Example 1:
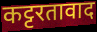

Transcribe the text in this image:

कट्टरतावाद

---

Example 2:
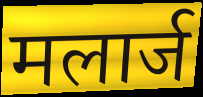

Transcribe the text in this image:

मलार्ज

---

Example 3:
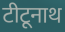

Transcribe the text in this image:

टीटूनाथ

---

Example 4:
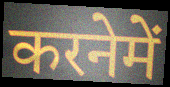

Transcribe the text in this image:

करनेमें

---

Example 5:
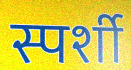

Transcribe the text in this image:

स्पर्शी